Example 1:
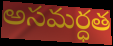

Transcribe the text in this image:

అసమర్ధత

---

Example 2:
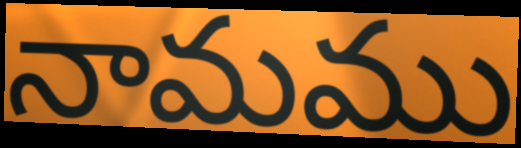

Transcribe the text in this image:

నామము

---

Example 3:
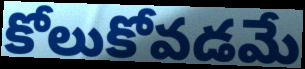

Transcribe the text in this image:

కోలుకోవడమే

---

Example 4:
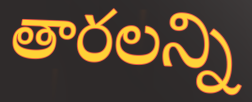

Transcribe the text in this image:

తారలన్ని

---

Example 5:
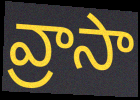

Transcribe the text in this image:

వ్రాసా